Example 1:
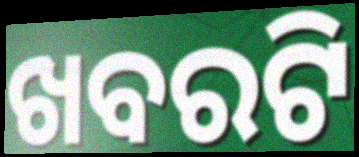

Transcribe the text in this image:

ଖବରଟି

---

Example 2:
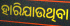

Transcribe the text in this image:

ହାରିଯାଉଥିବା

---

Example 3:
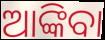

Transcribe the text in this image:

ଆଙ୍କିବା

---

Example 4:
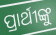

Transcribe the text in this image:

ପ୍ରାର୍ଥୀଙ୍କୁ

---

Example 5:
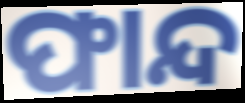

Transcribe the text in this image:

ଫାନ୍ଦ